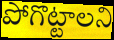
పోగొట్టాలని